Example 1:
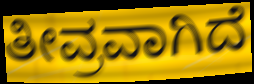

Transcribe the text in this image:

ತೀವ್ರವಾಗಿದೆ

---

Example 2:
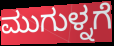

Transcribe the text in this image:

ಮುಗುಳ್ನಗೆ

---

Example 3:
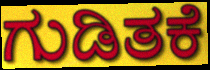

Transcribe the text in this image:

ಗುಡಿತಕೆ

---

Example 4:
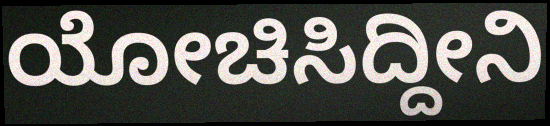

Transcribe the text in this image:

ಯೋಚಿಸಿದ್ದೀನಿ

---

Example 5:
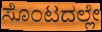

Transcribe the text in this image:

ಸೊಂಟದಲ್ಲೇ